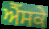
ਐੱਸਕੇ